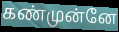
கண்முன்னே